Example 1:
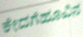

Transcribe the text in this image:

ಕೇದಗೆಹೂವಿನ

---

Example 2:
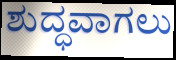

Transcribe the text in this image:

ಶುದ್ಧವಾಗಲು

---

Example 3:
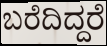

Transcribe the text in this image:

ಬರೆದಿದ್ದರೆ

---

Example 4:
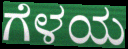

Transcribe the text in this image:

ಗೆಳಯ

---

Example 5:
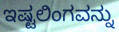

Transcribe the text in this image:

ಇಷ್ಟಲಿಂಗವನ್ನು